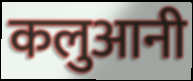
कलुआनी